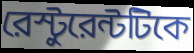
রেস্টুরেন্টটিকে